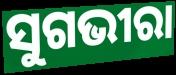
ସୁଗଭୀରା